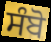
ਸੰਬੋ